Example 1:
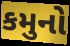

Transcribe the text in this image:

કમુનો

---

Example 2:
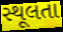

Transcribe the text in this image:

સ્થૂલતા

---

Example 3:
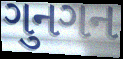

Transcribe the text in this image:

ગુનગન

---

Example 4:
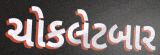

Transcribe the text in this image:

ચોકલેટબાર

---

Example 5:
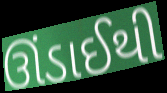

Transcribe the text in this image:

ઊંડાઈથી